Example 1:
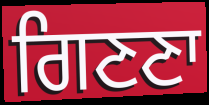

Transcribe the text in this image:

ਗਿਣਣਾ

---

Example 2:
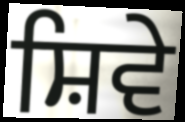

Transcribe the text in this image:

ਸ਼ਿਵੇ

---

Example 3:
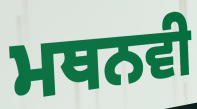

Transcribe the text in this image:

ਮਥਨਵੀ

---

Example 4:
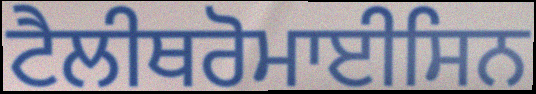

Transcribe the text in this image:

ਟੈਲੀਥਰੋਮਾਈਸਿਨ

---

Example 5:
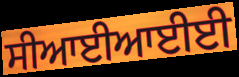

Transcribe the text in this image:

ਸੀਆਈਆਈਈ